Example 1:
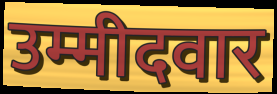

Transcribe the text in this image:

उम्मीदवार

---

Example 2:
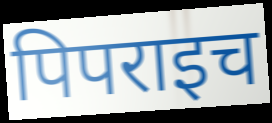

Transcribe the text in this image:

पिपराइच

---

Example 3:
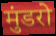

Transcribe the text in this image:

मुंडरो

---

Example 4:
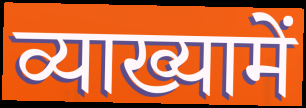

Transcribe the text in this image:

व्याख्यामें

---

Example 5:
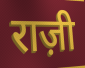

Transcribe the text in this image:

राज़ी